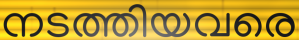
നടത്തിയവരെ